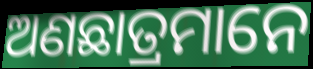
ଅଣଛାତ୍ରମାନେ